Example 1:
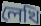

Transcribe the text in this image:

লেখি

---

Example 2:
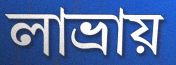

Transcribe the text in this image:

লাভ্ৰায়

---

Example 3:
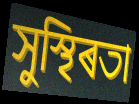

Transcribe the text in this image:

সুস্থিৰতা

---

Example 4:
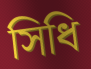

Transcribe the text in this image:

সিধি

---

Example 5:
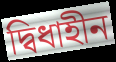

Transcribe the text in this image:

দ্বিধাহীন